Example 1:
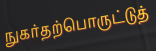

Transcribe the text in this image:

நுகர்தற்பொருட்டுத்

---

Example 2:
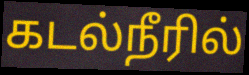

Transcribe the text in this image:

கடல்நீரில்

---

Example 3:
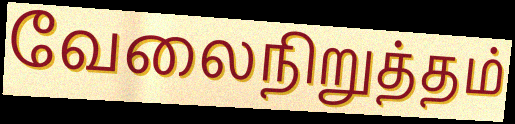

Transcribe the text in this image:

வேலைநிறுத்தம்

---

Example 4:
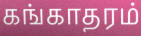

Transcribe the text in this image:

கங்காதரம்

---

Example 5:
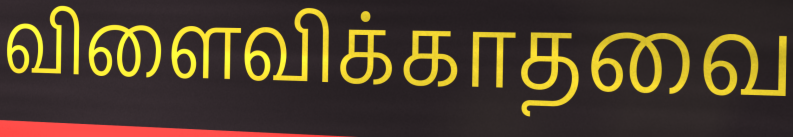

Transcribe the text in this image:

விளைவிக்காதவை